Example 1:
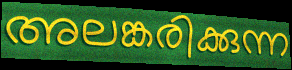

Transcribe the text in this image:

അലങ്കരിക്കുന്ന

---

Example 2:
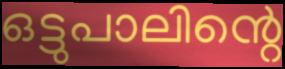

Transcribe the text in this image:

ഒട്ടുപാലിന്റെ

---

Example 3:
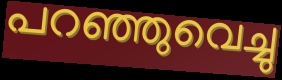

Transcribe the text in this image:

പറഞ്ഞുവെച്ചു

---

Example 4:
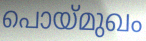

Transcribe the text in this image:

പൊയ്മുഖം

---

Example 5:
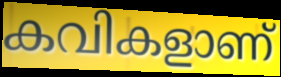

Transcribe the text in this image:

കവികളാണ്